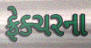
ફ્રેક્ચરના